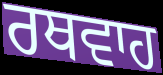
ਰਥਵਾਹ